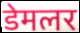
डेमलर